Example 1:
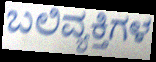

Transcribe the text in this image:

ಬಲಿವ್ಯಕ್ತಿಗಳ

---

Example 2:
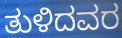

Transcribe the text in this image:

ತುಳಿದವರ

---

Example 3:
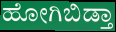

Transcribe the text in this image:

ಹೋಗಿಬಿಡ್ತಾ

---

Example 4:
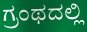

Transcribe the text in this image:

ಗ್ರಂಥದಲ್ಲಿ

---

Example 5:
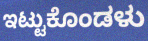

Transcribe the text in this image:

ಇಟ್ಟುಕೊಂಡಳು